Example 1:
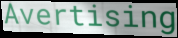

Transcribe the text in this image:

Avertising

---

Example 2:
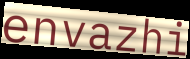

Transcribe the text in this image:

envazhi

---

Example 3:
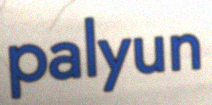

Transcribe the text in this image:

palyun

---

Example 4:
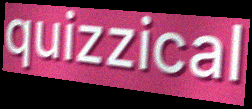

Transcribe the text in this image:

quizzical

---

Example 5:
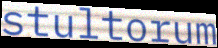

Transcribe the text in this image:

stultorum